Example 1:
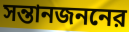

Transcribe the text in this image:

সন্তানজননের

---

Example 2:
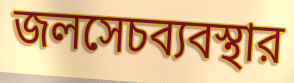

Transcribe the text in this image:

জলসেচব্যবস্থার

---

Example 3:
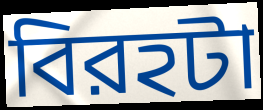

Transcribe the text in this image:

বিরহটা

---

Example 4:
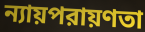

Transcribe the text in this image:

ন্যায়পরায়ণতা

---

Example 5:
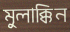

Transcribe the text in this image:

মুলাক্কিন